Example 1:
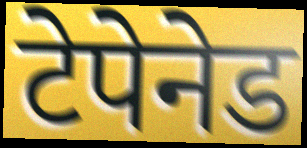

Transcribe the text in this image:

टेपेनेड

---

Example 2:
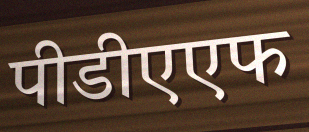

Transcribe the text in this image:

पीडीएएफ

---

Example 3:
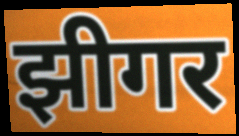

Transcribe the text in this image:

झीगर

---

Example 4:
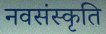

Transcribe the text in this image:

नवसंस्कृति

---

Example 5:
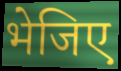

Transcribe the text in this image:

भेजिए